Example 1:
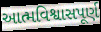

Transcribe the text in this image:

આત્મવિશ્વાસપૂર્ણ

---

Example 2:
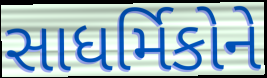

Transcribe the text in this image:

સાધર્મિકોને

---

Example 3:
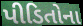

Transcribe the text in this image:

પીડિતોના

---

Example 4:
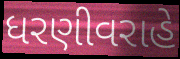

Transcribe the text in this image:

ધરણીવરાહે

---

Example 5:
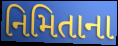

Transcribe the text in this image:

નિમિતાના